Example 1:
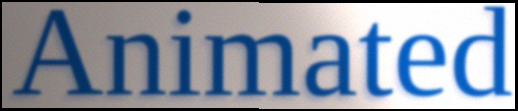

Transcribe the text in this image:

Animated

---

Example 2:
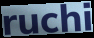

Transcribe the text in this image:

ruchi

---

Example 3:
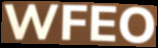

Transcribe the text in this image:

WFEO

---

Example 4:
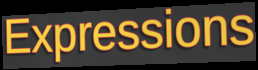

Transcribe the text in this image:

Expressions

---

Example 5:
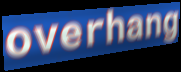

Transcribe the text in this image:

overhang